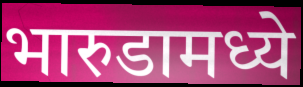
भारुडामध्ये